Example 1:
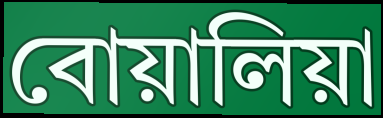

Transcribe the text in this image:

বোয়ালিয়া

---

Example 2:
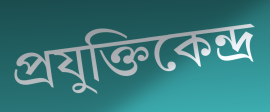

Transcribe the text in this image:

প্রযুক্তিকেন্দ্র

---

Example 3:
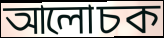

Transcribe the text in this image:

আলোচক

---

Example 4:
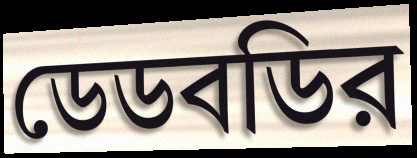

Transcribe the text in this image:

ডেডবডির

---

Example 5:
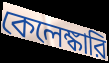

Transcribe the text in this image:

কেলেঙ্কারি